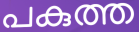
പകുത്ത